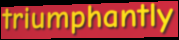
triumphantly